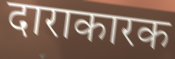
दाराकारक